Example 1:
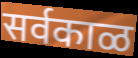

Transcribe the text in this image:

सर्वकाळ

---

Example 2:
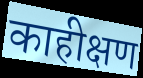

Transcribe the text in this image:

काहीक्षण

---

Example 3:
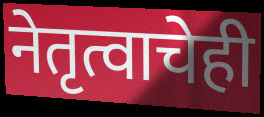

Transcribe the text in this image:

नेतृत्वाचेही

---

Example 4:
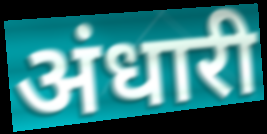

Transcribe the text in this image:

अंधारी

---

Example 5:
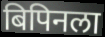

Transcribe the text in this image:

बिपिनला